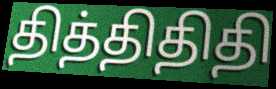
தித்திதிதி